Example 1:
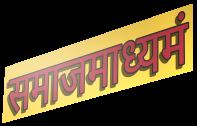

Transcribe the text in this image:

समाजमाध्यमं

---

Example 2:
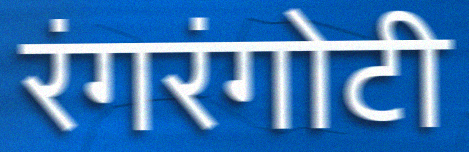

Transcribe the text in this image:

रंगरंगोटी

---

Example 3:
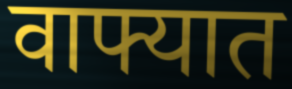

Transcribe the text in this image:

वाफ्यात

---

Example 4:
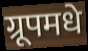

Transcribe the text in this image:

ग्रूपमधे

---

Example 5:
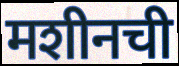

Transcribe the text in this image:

मशीनची